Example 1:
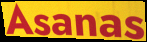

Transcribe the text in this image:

Asanas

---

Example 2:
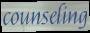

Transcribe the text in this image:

counseling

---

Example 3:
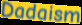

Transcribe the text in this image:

Dadaism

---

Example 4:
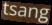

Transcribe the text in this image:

tsang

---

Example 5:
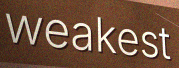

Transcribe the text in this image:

weakest